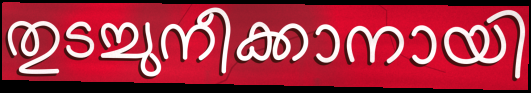
തുടച്ചുനീക്കാനായി